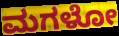
ಮಗಳೋ